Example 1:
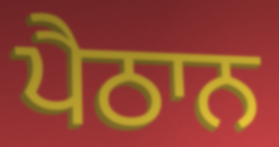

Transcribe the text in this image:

ਪੈਠਾਨ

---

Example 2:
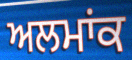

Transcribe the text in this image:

ਅਲਮਾਂਕ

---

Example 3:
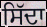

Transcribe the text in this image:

ਸਿੱਦਾ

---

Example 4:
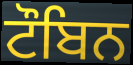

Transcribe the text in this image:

ਟੌਬਿਨ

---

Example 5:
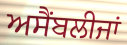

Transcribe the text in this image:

ਅਸੈਂਬਲੀਜਾਂ